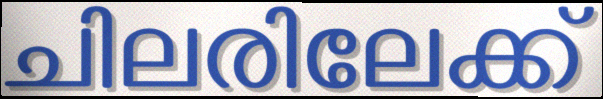
ചിലരിലേക്ക്